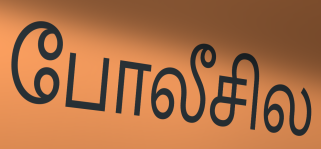
போலீசில